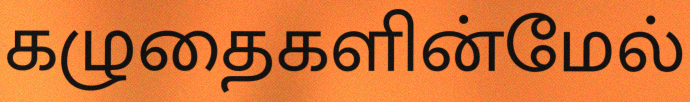
கழுதைகளின்மேல்